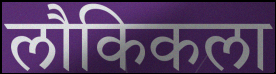
लौकिकला